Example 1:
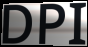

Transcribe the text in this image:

DPI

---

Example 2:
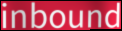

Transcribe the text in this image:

inbound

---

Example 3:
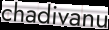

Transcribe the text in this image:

chadivanu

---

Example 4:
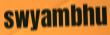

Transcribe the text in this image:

swyambhu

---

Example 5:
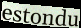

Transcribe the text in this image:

estondu